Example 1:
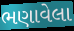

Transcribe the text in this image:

ભણાવેલા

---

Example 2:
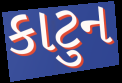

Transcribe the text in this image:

કાટુન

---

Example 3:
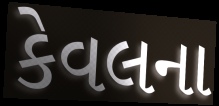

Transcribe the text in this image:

કેવલના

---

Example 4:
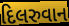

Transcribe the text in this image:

દિલરુવાન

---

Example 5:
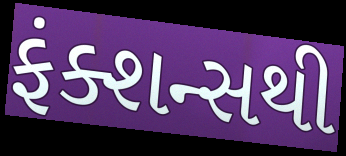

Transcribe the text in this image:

ફંક્શન્સથી